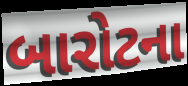
બારોટના